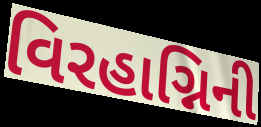
વિરહાગ્નિની